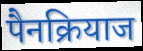
पैनक्रियाज